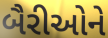
બૈરીઓને